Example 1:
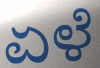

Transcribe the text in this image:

ಏಳೆ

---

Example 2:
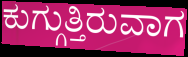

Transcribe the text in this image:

ಕುಗ್ಗುತ್ತಿರುವಾಗ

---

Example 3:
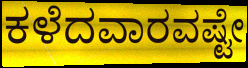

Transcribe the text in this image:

ಕಳೆದವಾರವಷ್ಟೇ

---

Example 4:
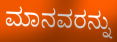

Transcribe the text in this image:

ಮಾನವರನ್ನು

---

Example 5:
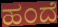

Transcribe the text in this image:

ಹಂದೆ